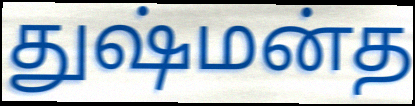
துஷ்மன்த